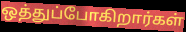
ஒத்துப்போகிறார்கள்